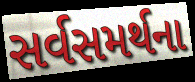
સર્વસમર્થના